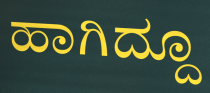
ಹಾಗಿದ್ದೂ